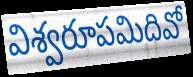
విశ్వరూపమిదివో